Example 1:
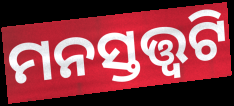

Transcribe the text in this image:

ମନସ୍ତତ୍ତ୍ୱଟି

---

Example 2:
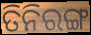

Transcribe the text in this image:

ତିନିରଙ୍ଗ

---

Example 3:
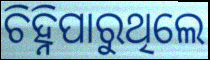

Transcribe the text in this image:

ଚିହ୍ନିପାରୁଥିଲେ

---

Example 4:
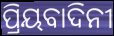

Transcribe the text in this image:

ପ୍ରିୟବାଦିନୀ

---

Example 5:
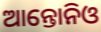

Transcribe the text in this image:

ଆନ୍ତୋନିଓ